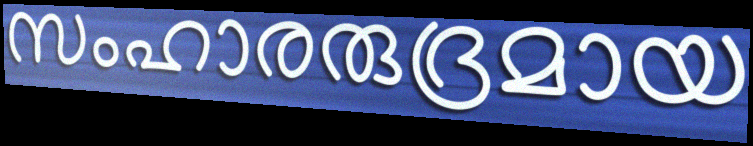
സംഹാരരുദ്രമായ